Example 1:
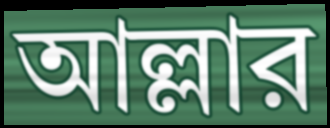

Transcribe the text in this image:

আল্লার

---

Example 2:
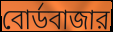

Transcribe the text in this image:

বোর্ডবাজার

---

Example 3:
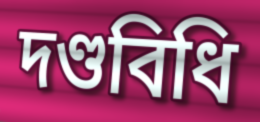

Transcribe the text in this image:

দণ্ডবিধি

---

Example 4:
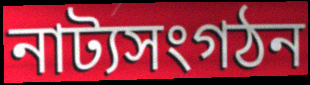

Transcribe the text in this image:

নাট্যসংগঠন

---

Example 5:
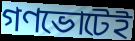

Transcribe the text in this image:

গণভোটেই